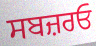
ਸਬਜ਼ਰਓ